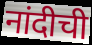
नांदीची